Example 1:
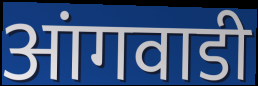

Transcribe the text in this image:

आंगवाडी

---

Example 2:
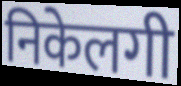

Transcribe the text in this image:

निकेलगी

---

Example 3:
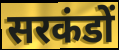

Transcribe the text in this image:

सरकंडों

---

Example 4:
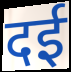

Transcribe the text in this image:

दई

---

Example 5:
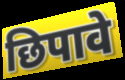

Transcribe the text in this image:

छिपावे